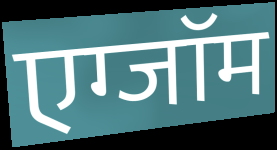
एग्जॉम